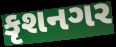
કૃશનગર